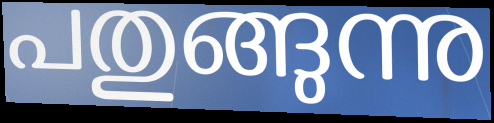
പതുങ്ങുന്നു